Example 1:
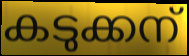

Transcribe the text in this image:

കടുക്കന്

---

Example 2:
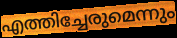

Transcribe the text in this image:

എത്തിച്ചേരുമെന്നും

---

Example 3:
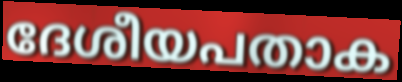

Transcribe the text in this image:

ദേശീയപതാക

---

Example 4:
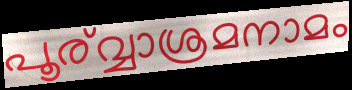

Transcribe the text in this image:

പൂര്വ്വാശ്രമനാമം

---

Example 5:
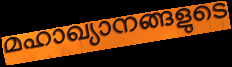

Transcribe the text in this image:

മഹാഖ്യാനങ്ങളുടെ